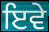
ਇਵੇ